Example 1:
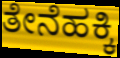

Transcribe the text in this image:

ತೇನೆಹಕ್ಕಿ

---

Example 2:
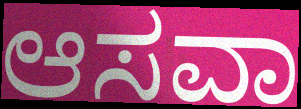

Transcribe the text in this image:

ಆಸವಾ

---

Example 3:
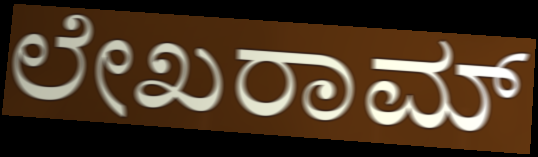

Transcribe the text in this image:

ಲೇಖರಾಮ್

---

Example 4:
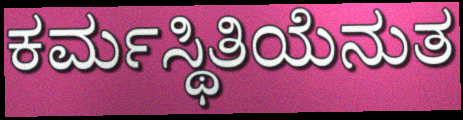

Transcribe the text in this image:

ಕರ್ಮಸ್ಥಿತಿಯೆನುತ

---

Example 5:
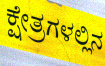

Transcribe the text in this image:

ಕ್ಷೇತ್ರಗಳಲ್ಲಿನ